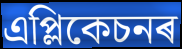
এপ্লিকেচনৰ